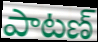
పాటణ్